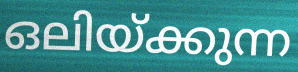
ഒലിയ്ക്കുന്ന